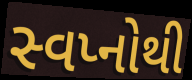
સ્વપ્નોથી